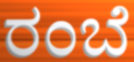
ರಂಬೆ